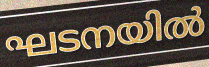
ഘടനയിൽ